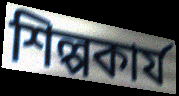
শিল্পকার্য